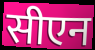
सीएन